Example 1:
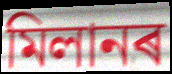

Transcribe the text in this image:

মিলানৰ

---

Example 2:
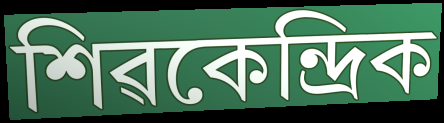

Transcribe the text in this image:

শিৱকেন্দ্ৰিক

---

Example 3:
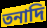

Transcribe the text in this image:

তনাদি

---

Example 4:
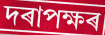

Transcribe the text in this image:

দৰাপক্ষৰ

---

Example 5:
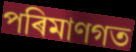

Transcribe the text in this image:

পৰিমাণগত